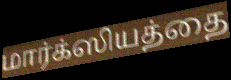
மார்க்ஸியத்தை